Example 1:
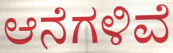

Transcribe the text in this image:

ಆನೆಗಳಿವೆ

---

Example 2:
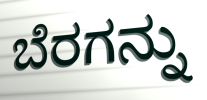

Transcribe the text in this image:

ಬೆರಗನ್ನು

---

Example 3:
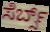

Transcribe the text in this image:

ಸೆರ್ಬ್ಸ್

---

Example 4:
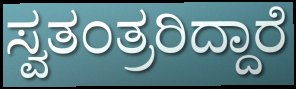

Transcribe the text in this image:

ಸ್ವತಂತ್ರರಿದ್ದಾರೆ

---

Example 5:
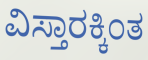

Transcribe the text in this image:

ವಿಸ್ತಾರಕ್ಕಿಂತ